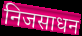
निजसाधन